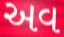
અવ